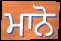
ਮਾਨੋ